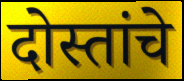
दोस्तांचे